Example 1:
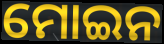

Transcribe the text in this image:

ମୋଇନ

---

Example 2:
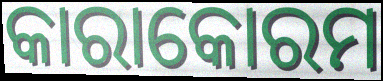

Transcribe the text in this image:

କାରାକୋରମ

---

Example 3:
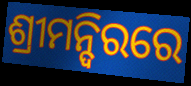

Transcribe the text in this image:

ଶ୍ରୀମନ୍ଦିରରେ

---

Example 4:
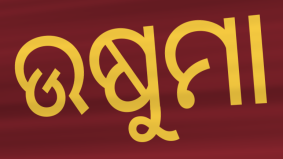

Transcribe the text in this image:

ଉଷୁମା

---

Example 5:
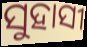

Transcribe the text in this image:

ସୁହାସୀ